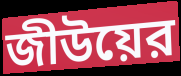
জীউয়ের